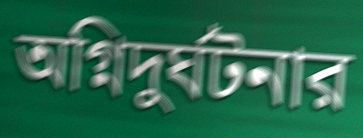
অগ্নিদুর্ঘটনার